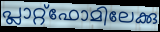
പ്ലാറ്റ്ഫോമിലേക്കു